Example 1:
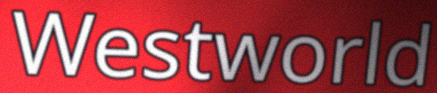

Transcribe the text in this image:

Westworld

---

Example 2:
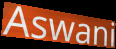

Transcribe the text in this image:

Aswani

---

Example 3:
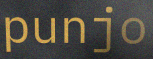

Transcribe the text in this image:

punjo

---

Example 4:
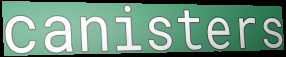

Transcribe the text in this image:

canisters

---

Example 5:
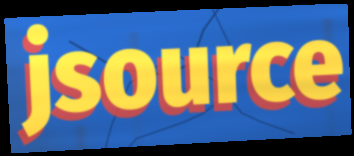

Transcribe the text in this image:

jsource